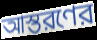
আস্তরণের